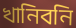
খানিবনি